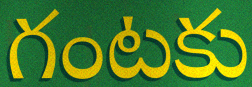
గంటకు